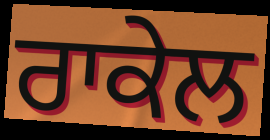
ਰਾਕੇਲ